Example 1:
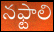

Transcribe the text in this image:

నఫ్టాలి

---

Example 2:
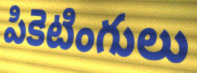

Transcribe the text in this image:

పికెటింగులు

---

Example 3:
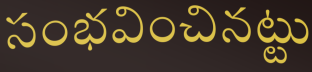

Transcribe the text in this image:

సంభవించినట్టు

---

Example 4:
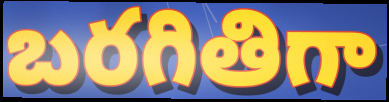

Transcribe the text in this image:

బరగితిగా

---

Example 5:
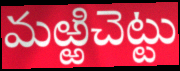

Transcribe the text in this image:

మఱ్ఱిచెట్టు